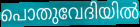
പൊതുവേദിയിൽ